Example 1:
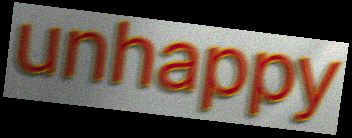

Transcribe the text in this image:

unhappy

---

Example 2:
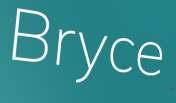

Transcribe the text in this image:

Bryce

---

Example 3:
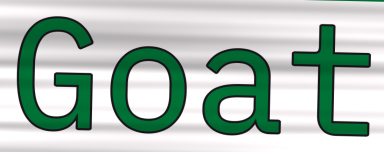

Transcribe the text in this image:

Goat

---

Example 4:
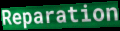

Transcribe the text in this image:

Reparation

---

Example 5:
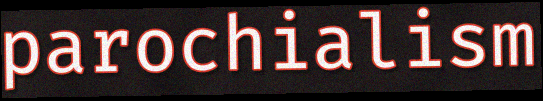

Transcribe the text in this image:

parochialism